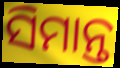
ସିମାନ୍ତ